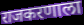
राजकरणाला